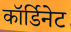
कॉर्डिनेट